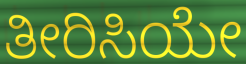
ತೀರಿಸಿಯೇ